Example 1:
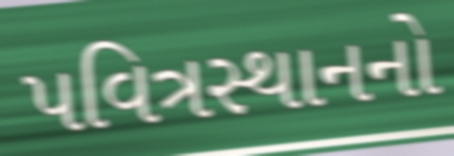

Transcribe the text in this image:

પવિત્રસ્થાનનો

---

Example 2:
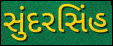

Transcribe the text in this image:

સુંદરસિંહ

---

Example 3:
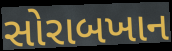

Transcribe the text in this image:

સોરાબખાન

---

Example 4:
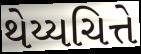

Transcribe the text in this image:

થેય્યચિત્તે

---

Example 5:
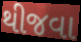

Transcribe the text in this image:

થીજવા